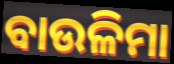
ବାଉଳିମା